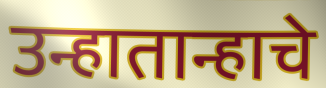
उन्हातान्हाचे